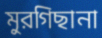
মুরগিছানা